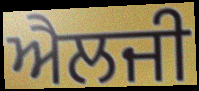
ਐਲਜੀ